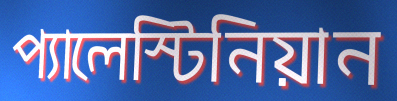
প্যালেস্টিনিয়ান